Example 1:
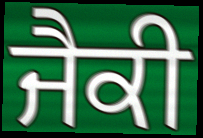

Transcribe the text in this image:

ਜੈਕੀ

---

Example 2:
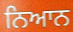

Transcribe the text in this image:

ਨਿਆਨ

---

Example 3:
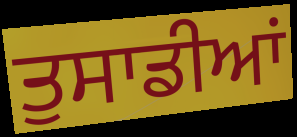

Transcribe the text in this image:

ਤੁਸਾਡੀਆਂ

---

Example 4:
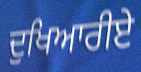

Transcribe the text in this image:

ਦੁਖਿਆਰੀਏ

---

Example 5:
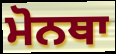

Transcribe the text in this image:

ਮੋਨਥਾ